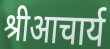
श्रीआचार्य